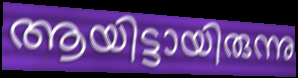
ആയിട്ടായിരുന്നു